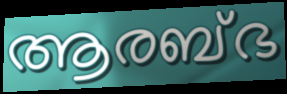
ആരബ്ഭ